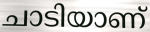
ചാടിയാണ്